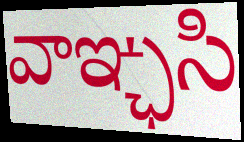
వాఞ్ఛసి